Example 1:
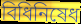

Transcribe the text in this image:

বিধিনিষেধ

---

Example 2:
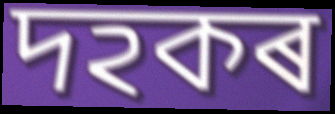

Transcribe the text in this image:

দহকৰ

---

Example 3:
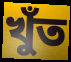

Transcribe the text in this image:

খুঁত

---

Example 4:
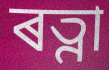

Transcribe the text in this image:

ৰত্না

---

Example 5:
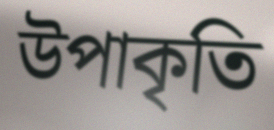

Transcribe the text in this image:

উপাকৃতি